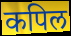
कपिल